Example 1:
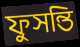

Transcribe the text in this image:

ফুসন্তি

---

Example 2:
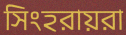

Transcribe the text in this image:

সিংহরায়রা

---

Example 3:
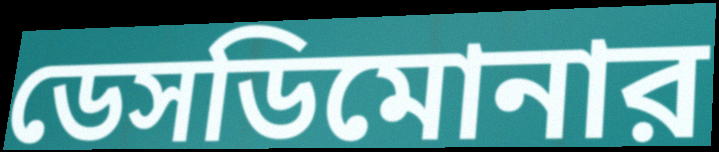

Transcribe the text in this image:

ডেসডিমোনার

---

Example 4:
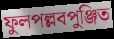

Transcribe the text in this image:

ফুলপল্লবপুঞ্জিত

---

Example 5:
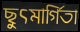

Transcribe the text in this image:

ছুৎমার্গিতা